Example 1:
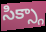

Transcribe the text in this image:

సిక్స్గా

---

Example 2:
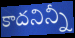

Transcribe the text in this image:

కాదనిన్నీ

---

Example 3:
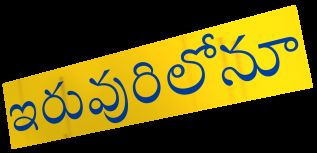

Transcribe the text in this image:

ఇరువురిలోనూ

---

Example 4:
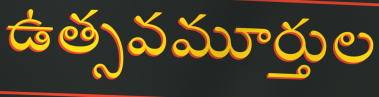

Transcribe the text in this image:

ఉత్సవమూర్తుల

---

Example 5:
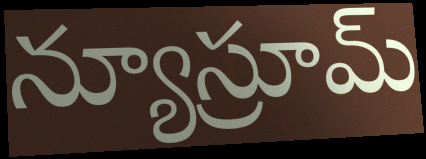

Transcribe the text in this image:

న్యూస్రూమ్